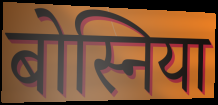
बोस्निया